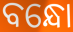
ବନ୍ଧୋ